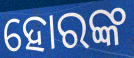
ହୋରଙ୍କ